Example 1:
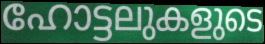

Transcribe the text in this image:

ഹോട്ടലുകളുടെ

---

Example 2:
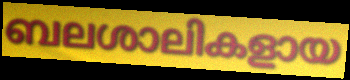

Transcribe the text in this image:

ബലശാലികളായ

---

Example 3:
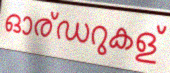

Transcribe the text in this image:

ഓര്ഡറുകള്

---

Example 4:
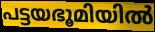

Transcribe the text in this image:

പട്ടയഭൂമിയിൽ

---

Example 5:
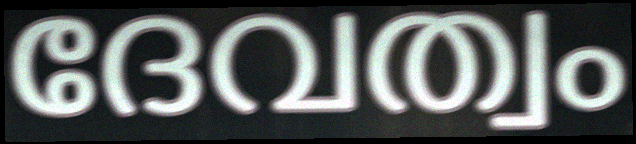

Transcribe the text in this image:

ദേവത്വം